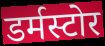
डर्मस्टोर